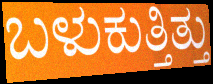
ಬಳುಕುತ್ತಿತ್ತು